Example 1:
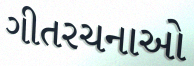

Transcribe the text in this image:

ગીતરચનાઓ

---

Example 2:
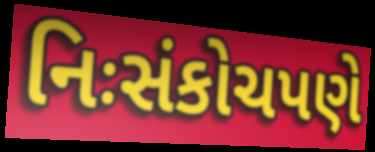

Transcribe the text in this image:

નિઃસંકોચપણે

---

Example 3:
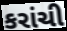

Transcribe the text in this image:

કરાંચી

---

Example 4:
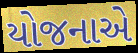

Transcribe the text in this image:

યોજનાએ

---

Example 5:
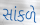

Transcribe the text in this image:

સાંકળે